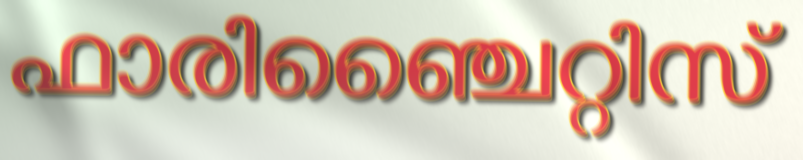
ഫാരിഞ്ചൈറ്റിസ്